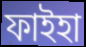
ফাইহা